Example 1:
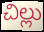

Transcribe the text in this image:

చిల్లు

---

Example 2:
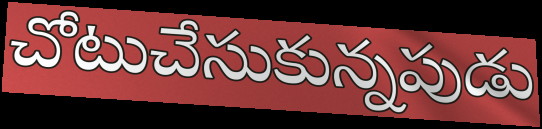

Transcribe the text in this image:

చోటుచేసుకున్నపుడు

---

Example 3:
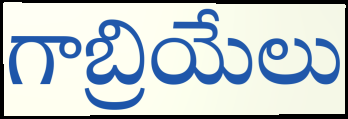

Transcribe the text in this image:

గాబ్రియేలు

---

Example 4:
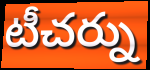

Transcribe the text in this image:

టీచర్ను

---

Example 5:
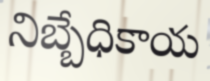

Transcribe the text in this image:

నిబ్బేధికాయ